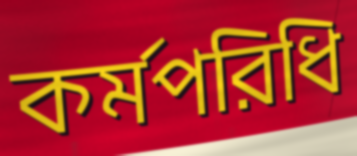
কর্মপরিধি